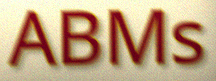
ABMs